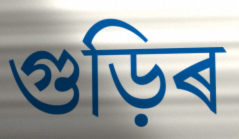
গুড়িৰ